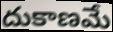
దుకాణమే